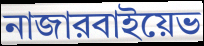
নাজারবাইয়েভ